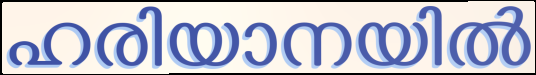
ഹരിയാനയിൽ